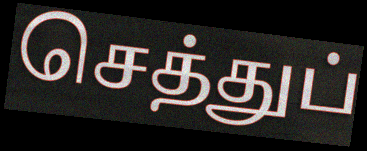
செத்துப்